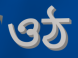
ওঠ